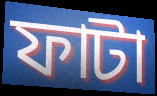
ফাটা